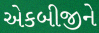
એકબીજીને